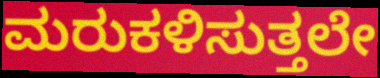
ಮರುಕಳಿಸುತ್ತಲೇ